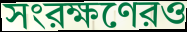
সংরক্ষণেরও